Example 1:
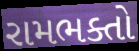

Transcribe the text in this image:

રામભક્તો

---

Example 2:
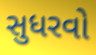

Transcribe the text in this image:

સુધરવો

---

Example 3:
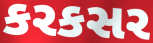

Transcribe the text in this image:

કરકસર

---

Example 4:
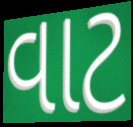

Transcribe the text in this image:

વાટ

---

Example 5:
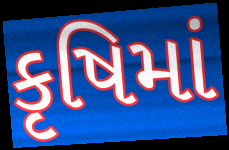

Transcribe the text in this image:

કૃષિમાં